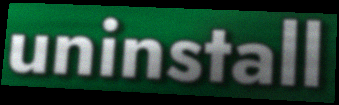
uninstall